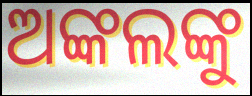
ଅଙ୍କଲଙ୍କୁ